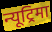
न्यूट्रिमा